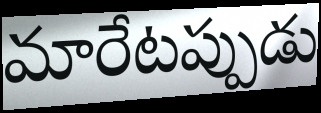
మారేటప్పుడు